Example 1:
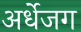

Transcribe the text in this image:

अर्धेजग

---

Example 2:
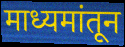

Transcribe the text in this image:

माध्यमांतून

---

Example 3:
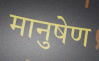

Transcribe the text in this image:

मानुषेण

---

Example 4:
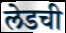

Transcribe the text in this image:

लेडची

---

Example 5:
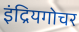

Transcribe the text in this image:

इंद्रियगोचर